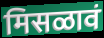
मिसळावं